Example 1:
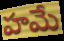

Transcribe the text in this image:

హమే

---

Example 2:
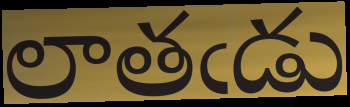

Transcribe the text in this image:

లాతఁడు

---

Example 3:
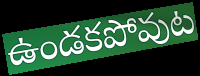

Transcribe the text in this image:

ఉండకపోవుట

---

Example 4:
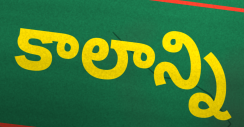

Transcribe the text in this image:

కాలాన్ని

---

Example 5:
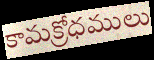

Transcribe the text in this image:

కామక్రోధములు